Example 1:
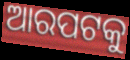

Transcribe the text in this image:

ଆରପଟକୁ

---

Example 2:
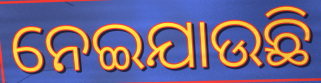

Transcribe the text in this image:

ନେଇଯାଉଛି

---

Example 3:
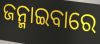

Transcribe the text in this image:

ଜନ୍ମାଇବାରେ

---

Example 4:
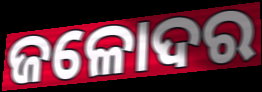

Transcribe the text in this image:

ଜଳୋଦର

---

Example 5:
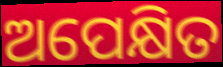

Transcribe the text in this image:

ଅପେକ୍ଷିତ